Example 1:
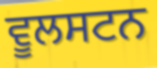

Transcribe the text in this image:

ਵੂਲਸਟਨ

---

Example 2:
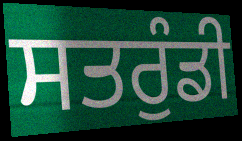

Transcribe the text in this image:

ਸਤਰੁੰਡੀ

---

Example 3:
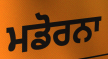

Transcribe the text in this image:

ਮਡੋਰਨਾ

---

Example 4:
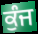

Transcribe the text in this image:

ਕੁੰਜ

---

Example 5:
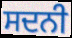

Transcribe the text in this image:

ਸਦਨੀ